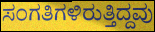
ಸಂಗತಿಗಳಿರುತ್ತಿದ್ದವು